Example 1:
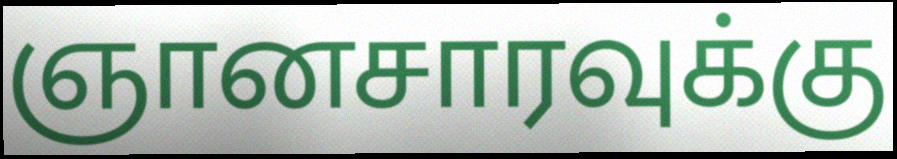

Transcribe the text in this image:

ஞானசாரவுக்கு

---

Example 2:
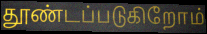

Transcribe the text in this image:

தூண்டப்படுகிறோம்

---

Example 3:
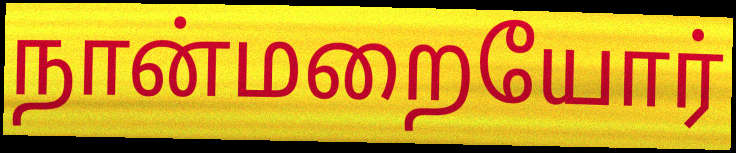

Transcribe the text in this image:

நான்மறையோர்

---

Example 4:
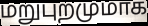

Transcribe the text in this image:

மறுபுறமுமாக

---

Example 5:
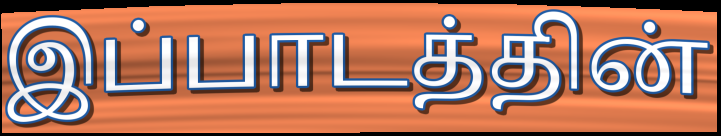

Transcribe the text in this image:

இப்பாடத்தின்